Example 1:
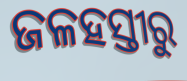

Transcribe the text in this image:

ଜଳହସ୍ତୀରୁ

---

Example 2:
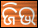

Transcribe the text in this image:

ଜିଭ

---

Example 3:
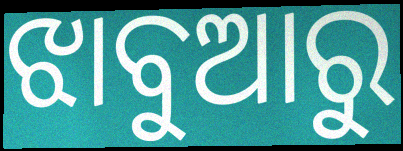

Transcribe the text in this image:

ଝାବୁଆରୁ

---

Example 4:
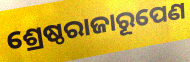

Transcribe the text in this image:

ଶ୍ରେଷ୍ଠରାଜାରୂପେଣ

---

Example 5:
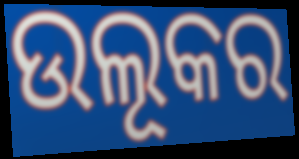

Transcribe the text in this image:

ଉଲୂକର